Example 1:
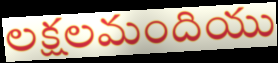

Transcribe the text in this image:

లక్షలమందియు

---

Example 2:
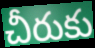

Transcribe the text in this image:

చీరుకు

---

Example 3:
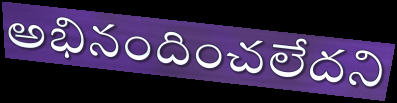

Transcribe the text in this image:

అభినందించలేదని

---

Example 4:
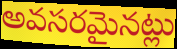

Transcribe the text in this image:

అవసరమైనట్లు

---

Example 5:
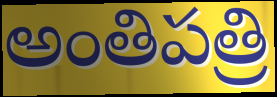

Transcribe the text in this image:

అంతిపత్రి